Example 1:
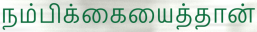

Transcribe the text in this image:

நம்பிக்கையைத்தான்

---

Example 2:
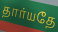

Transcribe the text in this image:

தார்யதே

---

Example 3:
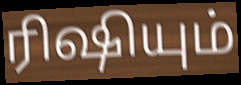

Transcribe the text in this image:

ரிஷியும்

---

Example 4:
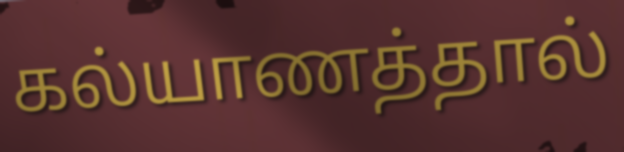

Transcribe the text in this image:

கல்யாணத்தால்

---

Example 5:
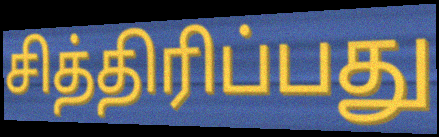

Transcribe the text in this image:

சித்திரிப்பது